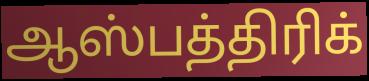
ஆஸ்பத்திரிக்